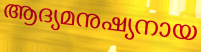
ആദ്യമനുഷ്യനായ